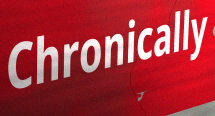
Chronically